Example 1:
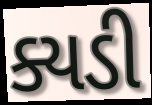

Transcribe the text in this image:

ક્યડી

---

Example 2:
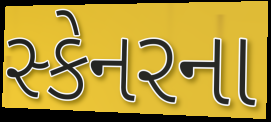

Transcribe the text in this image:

સ્કેનરના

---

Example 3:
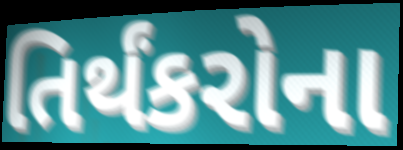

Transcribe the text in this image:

તિર્થંકરોના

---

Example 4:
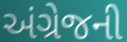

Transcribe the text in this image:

અંગ્રેજની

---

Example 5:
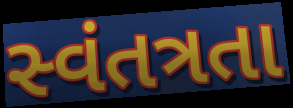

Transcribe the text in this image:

સ્વંતત્રતા